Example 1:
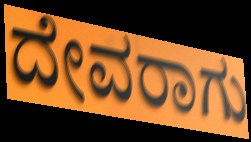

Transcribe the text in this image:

ದೇವರಾಗು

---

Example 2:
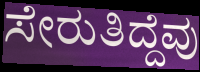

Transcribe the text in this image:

ಸೇರುತಿದ್ದೆವು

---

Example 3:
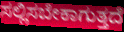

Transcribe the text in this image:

ಸಲ್ಲಿಸಬೇಕಾಗುತ್ತದೆ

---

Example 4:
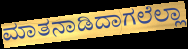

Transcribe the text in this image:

ಮಾತನಾಡಿದಾಗಲೆಲ್ಲಾ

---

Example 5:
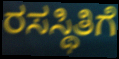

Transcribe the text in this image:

ರಸಸ್ಥಿತಿಗೆ